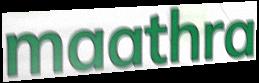
maathra